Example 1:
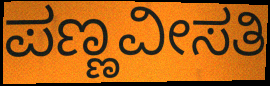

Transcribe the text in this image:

ಪಣ್ಣವೀಸತಿ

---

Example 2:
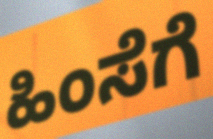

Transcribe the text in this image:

ಹಿಂಸೆಗೆ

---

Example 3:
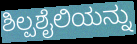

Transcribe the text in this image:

ಶಿಲ್ಪಶೈಲಿಯನ್ನು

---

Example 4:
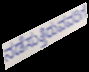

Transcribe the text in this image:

ನಡೆಸುತ್ತಿರುವವರಿಗೆ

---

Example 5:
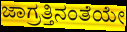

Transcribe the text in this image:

ಜಾಗ್ರತ್ತಿನಂತೆಯೇ